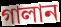
গালান